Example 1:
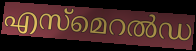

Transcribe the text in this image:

എസ്മെറൽഡ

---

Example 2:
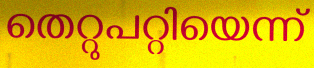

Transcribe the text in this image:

തെറ്റുപറ്റിയെന്ന്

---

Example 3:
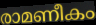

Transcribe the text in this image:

രാമണീകം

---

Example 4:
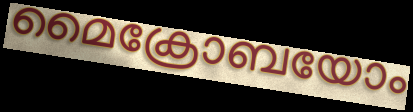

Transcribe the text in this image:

മൈക്രോബയോം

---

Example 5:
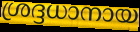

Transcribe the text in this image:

ശ്രദ്ദധാനായ